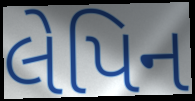
લેપિન